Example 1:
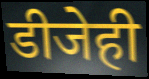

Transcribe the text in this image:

डीजेही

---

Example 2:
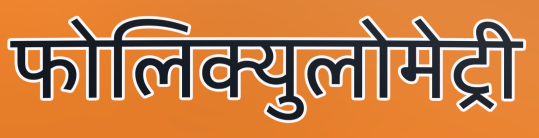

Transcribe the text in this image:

फोलिक्युलोमेट्री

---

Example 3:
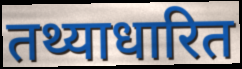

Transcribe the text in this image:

तथ्याधारित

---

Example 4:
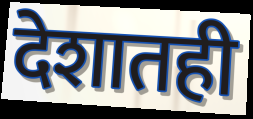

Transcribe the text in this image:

देशातही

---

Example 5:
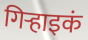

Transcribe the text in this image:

गिऱ्हाइकं